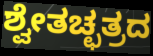
ಶ್ವೇತಚ್ಛತ್ರದ